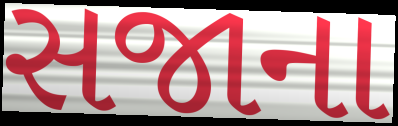
સજાના